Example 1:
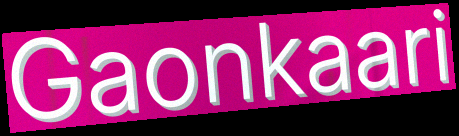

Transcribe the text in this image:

Gaonkaari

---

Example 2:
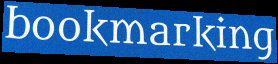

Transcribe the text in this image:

bookmarking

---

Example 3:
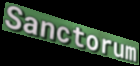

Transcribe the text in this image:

Sanctorum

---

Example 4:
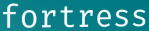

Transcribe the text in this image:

fortress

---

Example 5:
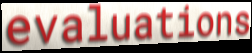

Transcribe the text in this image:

evaluations